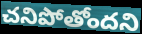
చనిపోతోందని